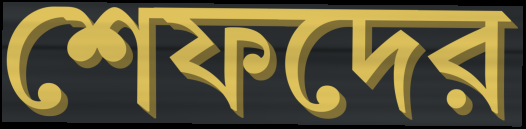
শেফদের